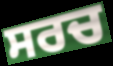
ਸਰਚ